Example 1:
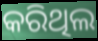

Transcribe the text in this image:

କରିଥିଲ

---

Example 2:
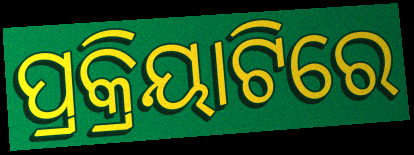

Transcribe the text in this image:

ପ୍ରକ୍ରିୟାଟିରେ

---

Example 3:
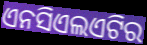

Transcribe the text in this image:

ଏନସିଏଲଏଟିର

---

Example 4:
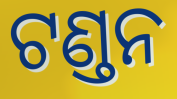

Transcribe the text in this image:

ଟଣ୍ଡନ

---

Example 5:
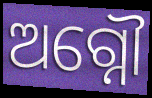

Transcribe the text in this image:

ଅଗ୍ନୌ